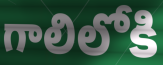
గాలిలోకి